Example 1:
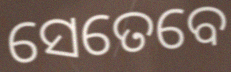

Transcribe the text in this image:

ସେତେବେ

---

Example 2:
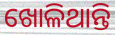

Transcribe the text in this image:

ଖୋଳିଥାନ୍ତି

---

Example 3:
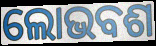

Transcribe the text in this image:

ଲୋଭବଶ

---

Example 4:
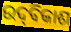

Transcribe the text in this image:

ଉଦ୍‌ବିକାଶ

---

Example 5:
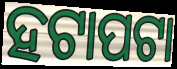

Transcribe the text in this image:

ହଟାପଟା